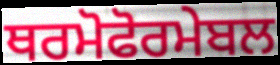
ਥਰਮੋਫੋਰਮੇਬਲ